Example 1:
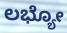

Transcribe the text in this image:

ಲಭ್ಯೋ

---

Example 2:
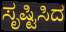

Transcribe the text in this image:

ಸೃಷ್ಟಿಸಿದ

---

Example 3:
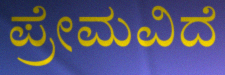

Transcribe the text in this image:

ಪ್ರೇಮವಿದೆ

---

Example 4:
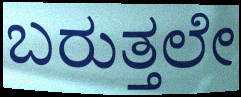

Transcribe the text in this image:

ಬರುತ್ತಲೇ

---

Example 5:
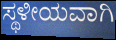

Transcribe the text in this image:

ಸ್ಥಳೀಯವಾಗಿ